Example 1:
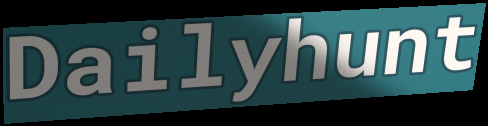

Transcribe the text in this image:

Dailyhunt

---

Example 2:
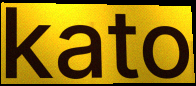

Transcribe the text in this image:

kato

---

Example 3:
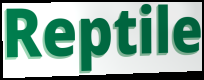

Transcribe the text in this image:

Reptile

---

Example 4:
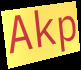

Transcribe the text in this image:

Akp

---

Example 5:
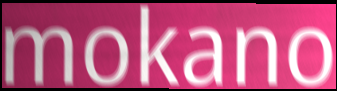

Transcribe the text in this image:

mokano